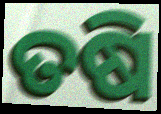
ତଷି